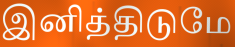
இனித்திடுமே